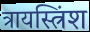
त्रायस्त्रिंश